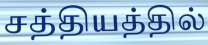
சத்தியத்தில்